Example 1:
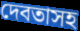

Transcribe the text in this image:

দেবতাসহ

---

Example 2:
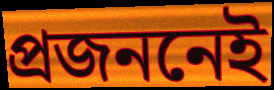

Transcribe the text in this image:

প্রজননেই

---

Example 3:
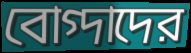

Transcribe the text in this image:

বোগ্দাদের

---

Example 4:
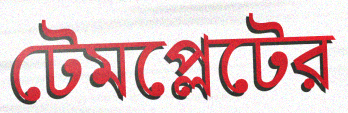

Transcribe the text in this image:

টেমপ্লেটের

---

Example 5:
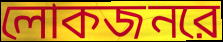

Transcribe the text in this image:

লোকজনরে